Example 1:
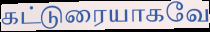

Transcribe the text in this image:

கட்டுரையாகவே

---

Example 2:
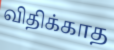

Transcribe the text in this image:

விதிக்காத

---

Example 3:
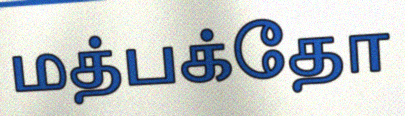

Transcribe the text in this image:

மத்பக்தோ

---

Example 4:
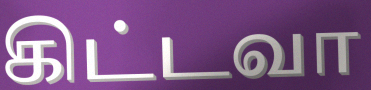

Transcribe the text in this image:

கிட்டவா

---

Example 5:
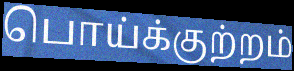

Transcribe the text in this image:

பொய்க்குற்றம்